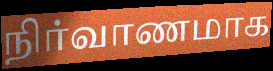
நிர்வாணமாக